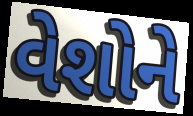
વેશોને